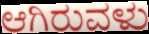
ಆಗಿರುವಳು